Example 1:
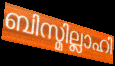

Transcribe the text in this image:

ബിസ്മില്ലാഹി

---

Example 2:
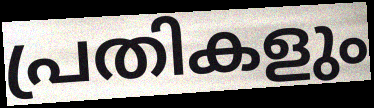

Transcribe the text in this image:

പ്രതികളും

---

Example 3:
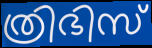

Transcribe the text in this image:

ത്രിഭിസ്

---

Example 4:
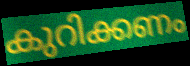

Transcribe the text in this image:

കുറിക്കണം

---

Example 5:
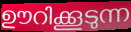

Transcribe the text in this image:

ഊറിക്കൂടുന്ന